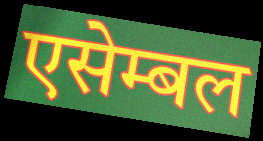
एसेम्बल